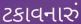
ટકાવનારું